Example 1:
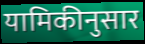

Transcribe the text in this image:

यामिकीनुसार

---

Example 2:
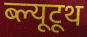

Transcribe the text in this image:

ब्ल्यूटूथ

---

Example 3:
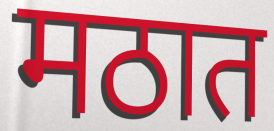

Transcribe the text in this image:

मठात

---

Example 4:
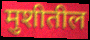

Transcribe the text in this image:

मुशीतील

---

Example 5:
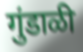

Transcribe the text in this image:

गुंडाळी